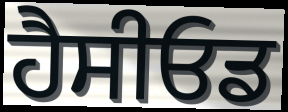
ਹੈਸੀਓਡ